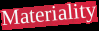
Materiality